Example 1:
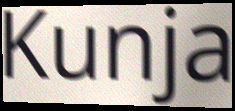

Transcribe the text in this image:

Kunja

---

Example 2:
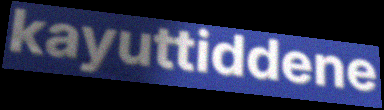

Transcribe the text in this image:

kayuttiddene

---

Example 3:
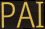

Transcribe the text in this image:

PAI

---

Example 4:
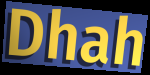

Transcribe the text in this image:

Dhah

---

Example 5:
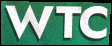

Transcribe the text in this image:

WTC